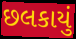
છલકાયું